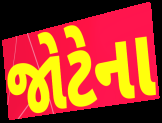
જોટેના